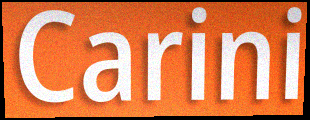
Carini